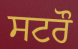
ਸਟਰੌ